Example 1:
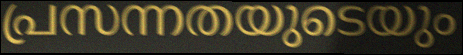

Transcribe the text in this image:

പ്രസന്നതയുടെയും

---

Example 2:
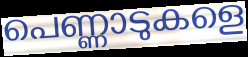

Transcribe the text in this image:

പെണ്ണാടുകളെ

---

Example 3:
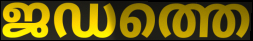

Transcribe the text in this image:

ജഡത്തെ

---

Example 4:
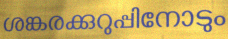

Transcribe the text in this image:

ശങ്കരക്കുറുപ്പിനോടും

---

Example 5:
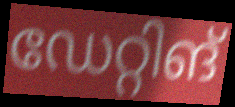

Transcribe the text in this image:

ഡേറ്റിങ്